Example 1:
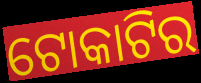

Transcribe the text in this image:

ଟୋକାଟିର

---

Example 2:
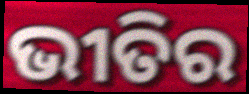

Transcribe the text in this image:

ଭୀତିର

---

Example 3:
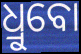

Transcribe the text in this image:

ଧ୍ରୁବୋ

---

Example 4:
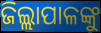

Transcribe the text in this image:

ଜିଲ୍ଲାପାଳଙ୍କୁ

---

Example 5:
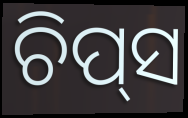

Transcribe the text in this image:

ଚିପ୍‌ସ